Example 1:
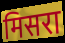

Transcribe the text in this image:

मिसरा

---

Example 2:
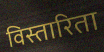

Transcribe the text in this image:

विस्तारिता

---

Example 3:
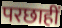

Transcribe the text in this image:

परछाहीं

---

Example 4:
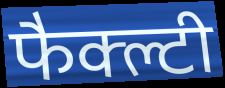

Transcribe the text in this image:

फैक्ल्टी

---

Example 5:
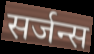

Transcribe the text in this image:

सर्जन्स